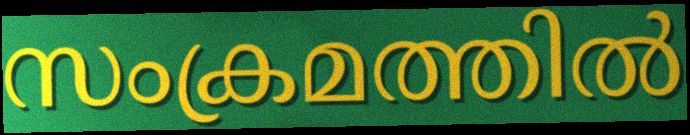
സംക്രമത്തിൽ